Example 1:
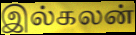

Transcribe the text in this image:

இல்கலன்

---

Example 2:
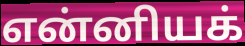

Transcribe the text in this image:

என்னியக்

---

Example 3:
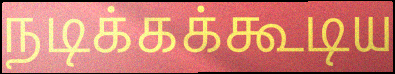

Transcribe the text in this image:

நடிக்கக்கூடிய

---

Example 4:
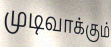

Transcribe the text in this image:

முடிவாக்கும்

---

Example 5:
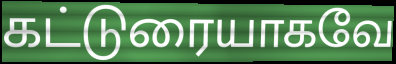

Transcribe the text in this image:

கட்டுரையாகவே